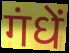
गंधें